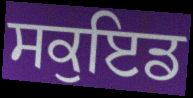
ਸਕੁਇਡ